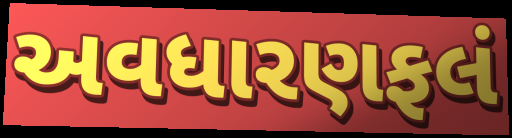
અવધારણફલં